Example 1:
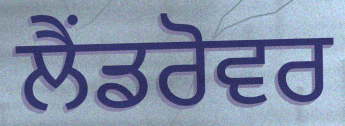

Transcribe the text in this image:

ਲੈਂਡਰੋਵਰ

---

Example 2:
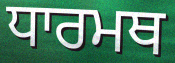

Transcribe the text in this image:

ਧਾਰਮਥ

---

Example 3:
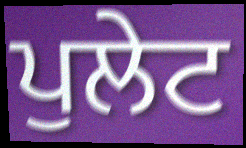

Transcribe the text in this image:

ਪੁਲੇਟ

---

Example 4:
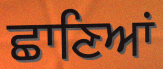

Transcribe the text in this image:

ਛਾਣਿਆਂ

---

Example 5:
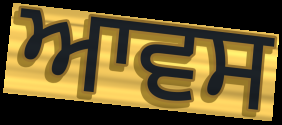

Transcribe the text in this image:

ਆਵਸ